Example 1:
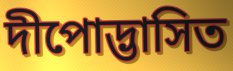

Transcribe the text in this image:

দীপোদ্ভাসিত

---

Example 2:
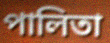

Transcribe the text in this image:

পালিতা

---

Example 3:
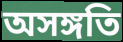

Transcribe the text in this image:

অসঙ্গতি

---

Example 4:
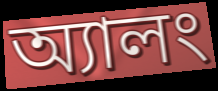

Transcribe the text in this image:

অ্যালং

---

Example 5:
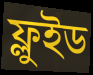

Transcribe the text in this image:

ফ্লুইড